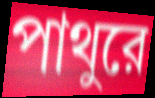
পাথুরে